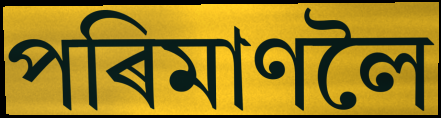
পৰিমাণলৈ